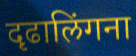
दृढालिंगना